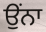
ਉੰਨਾ